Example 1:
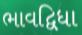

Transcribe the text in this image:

ભાવદ્વિધા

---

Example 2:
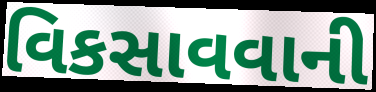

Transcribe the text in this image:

વિકસાવવાની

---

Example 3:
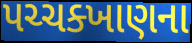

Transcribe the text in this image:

પચ્ચક્ખાણના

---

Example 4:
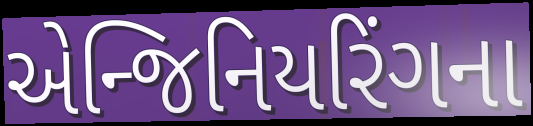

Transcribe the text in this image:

એન્જિનિયરિંગના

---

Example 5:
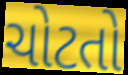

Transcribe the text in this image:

ચોટતો